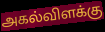
அகல்விளக்கு